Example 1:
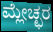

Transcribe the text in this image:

ಮ್ಲೇಚ್ಛರ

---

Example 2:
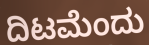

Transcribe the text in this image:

ದಿಟಮೆಂದು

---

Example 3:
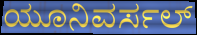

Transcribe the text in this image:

ಯೂನಿವರ್ಸಲ್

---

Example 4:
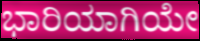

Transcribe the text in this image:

ಭಾರಿಯಾಗಿಯೇ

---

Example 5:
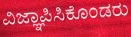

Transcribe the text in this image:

ವಿಜ್ಞಾಪಿಸಿಕೊಂಡರು